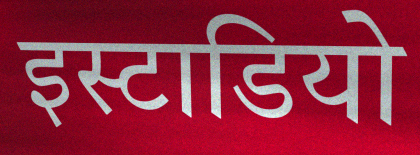
इस्टाडियो